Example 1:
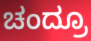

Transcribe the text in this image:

ಚಂದ್ರೂ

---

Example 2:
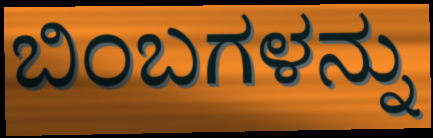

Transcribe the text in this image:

ಬಿಂಬಗಳನ್ನು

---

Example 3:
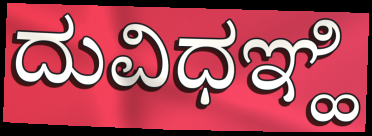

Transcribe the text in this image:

ದುವಿಧಞ್ಹಿ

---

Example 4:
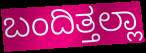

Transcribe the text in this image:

ಬಂದಿತ್ತಲ್ಲಾ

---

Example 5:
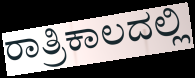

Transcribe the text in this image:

ರಾತ್ರಿಕಾಲದಲ್ಲಿ